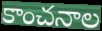
కాంచనాల